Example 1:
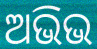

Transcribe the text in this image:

ଅଭିଭ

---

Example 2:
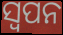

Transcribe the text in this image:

ସ୍ବପନ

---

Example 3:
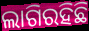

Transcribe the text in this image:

ଲାଗିରହିଛି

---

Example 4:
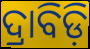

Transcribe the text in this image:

ଦ୍ରାବିଡ଼ି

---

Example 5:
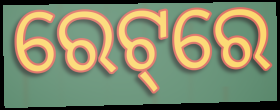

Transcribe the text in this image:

ରେଟ୍‌ରେ